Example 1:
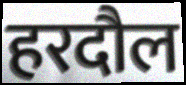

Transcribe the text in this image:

हरदौल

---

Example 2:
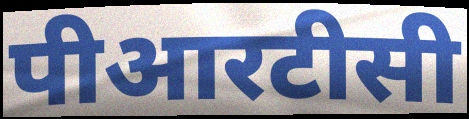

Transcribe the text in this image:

पीआरटीसी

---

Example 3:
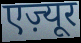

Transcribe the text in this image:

एज़्यूर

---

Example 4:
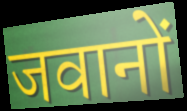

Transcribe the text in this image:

जवानों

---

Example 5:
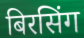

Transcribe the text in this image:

बिरसिंग